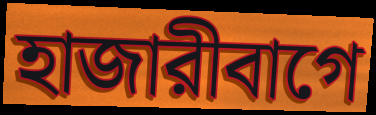
হাজারীবাগে